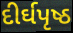
દીર્ઘપૃષ્ઠ